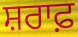
ਸ਼ਰਾਫ਼